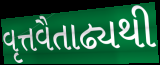
વૃત્તવૈતાઢ્યથી